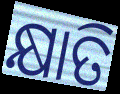
କ୍ଷାତି